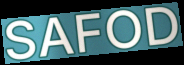
SAFOD